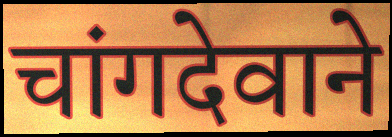
चांगदेवाने